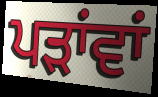
ਪੜਾਂਵਾਂ